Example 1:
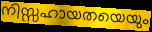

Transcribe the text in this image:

നിസ്സഹായതയെയും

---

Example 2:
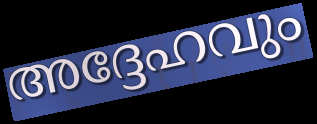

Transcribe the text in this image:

അദ്ദേഹവും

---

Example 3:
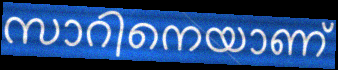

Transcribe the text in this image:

സാറിനെയാണ്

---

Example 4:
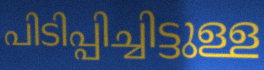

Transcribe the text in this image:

പിടിപ്പിച്ചിട്ടുള്ള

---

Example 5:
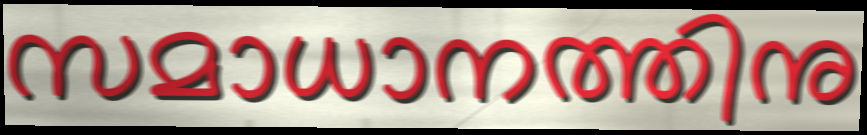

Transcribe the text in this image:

സമാധാനത്തിനു